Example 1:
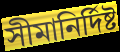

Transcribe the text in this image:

সীমানির্দিষ্ট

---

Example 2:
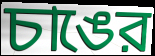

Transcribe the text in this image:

চাঙের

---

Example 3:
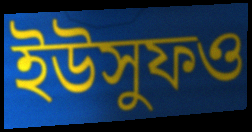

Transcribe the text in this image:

ইউসুফও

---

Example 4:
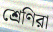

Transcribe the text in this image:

শ্রেণিরা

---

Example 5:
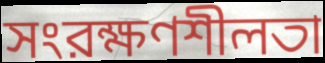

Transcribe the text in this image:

সংরক্ষণশীলতা